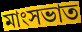
মাংসভাত